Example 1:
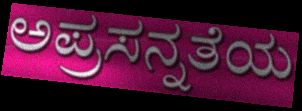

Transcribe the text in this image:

ಅಪ್ರಸನ್ನತೆಯ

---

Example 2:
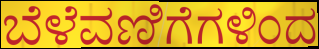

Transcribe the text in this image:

ಬೆಳೆವಣಿಗೆಗಳಿಂದ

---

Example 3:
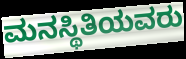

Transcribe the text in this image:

ಮನಸ್ಥಿತಿಯವರು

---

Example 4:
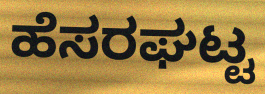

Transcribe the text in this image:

ಹೆಸರಘಟ್ಟ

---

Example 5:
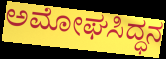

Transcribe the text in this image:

ಅಮೋಘಸಿದ್ಧನ